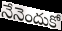
నేనెందుకో